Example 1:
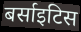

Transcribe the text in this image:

बर्साइटिस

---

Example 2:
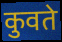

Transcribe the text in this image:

कुवते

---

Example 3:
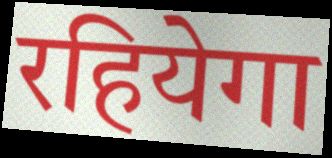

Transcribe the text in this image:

रहियेगा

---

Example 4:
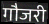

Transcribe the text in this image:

गौजरी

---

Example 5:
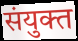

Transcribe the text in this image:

संयुक्‍त